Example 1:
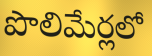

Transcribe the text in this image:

పొలిమేర్లలో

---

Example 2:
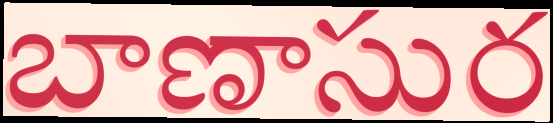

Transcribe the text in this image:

బాణాసుర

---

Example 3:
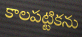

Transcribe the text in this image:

కాలపట్టికను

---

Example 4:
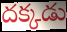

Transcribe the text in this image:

దక్కడు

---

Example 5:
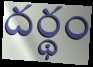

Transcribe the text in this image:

దర్థం